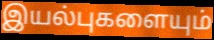
இயல்புகளையும்